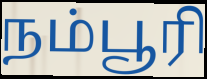
நம்பூரி